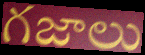
గజాలు